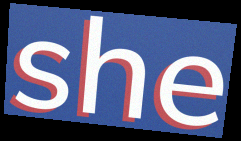
she